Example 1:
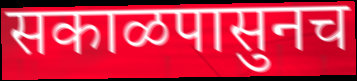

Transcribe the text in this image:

सकाळपासुनच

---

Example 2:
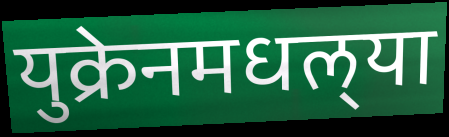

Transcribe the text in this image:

युक्रेनमधल्या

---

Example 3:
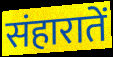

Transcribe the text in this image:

संहारातें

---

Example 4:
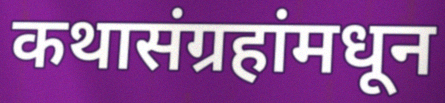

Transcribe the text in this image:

कथासंग्रहांमधून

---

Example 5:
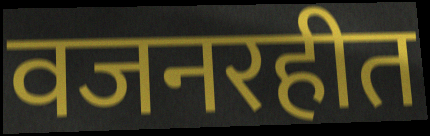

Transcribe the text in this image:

वजनरहीत